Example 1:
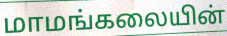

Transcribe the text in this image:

மாமங்கலையின்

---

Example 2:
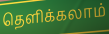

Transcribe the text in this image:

தெளிக்கலாம்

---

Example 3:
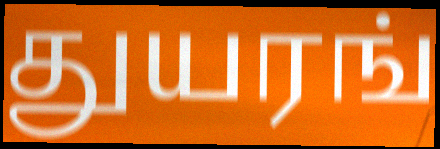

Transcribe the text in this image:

துயரங்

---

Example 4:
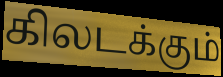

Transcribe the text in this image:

கிலடக்கும்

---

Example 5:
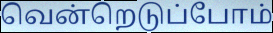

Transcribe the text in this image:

வென்றெடுப்போம்